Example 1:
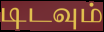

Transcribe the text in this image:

டிடவும்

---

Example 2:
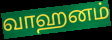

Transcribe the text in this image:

வாஹனம்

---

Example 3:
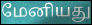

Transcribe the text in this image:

மேனியது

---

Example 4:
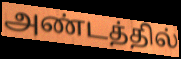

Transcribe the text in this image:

அண்டத்தில்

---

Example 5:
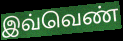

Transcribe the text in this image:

இவ்வெண்